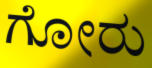
ಗೋರು